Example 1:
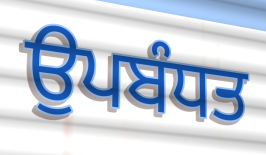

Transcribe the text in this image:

ਉਪਬੰਧਤ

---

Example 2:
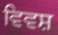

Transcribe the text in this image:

ਵਿਵਸ਼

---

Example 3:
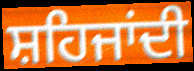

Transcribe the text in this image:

ਸ਼ਹਿਜਾਂਦੀ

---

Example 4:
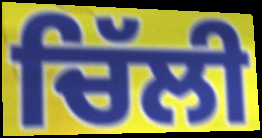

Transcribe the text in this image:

ਚਿੱਲੀ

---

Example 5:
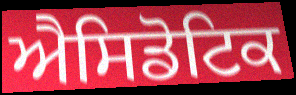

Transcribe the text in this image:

ਐਸਿਡੋਟਿਕ